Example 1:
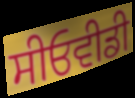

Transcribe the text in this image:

ਸੀਓਵੀਡੀ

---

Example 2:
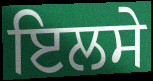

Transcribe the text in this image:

ਇਲਸੇ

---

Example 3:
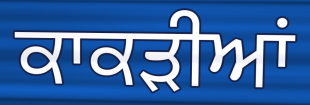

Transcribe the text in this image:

ਕਾਕੜੀਆਂ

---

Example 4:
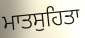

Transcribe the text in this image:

ਮਾਤਸੁਹਿਤਾ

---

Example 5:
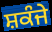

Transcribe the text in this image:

ਸ਼ਕੰਜੇ